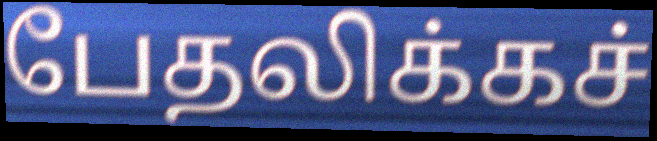
பேதலிக்கச்